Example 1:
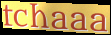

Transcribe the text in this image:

tchaaa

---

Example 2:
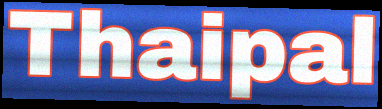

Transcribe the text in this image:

Thaipal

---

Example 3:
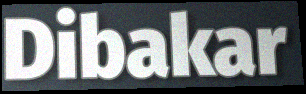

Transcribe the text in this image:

Dibakar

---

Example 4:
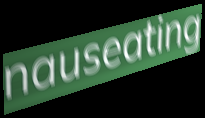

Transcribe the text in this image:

nauseating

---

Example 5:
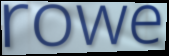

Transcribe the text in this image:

rowe